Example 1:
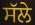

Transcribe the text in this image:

ਸੱਲੇ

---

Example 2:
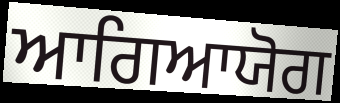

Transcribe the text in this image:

ਆਗਿਆਯੋਗ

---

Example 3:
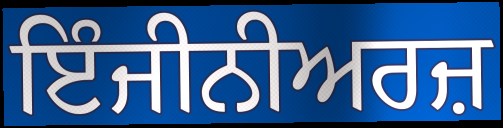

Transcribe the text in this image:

ਇੰਜੀਨੀਅਰਜ਼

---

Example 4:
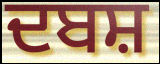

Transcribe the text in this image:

ਦਬਸ਼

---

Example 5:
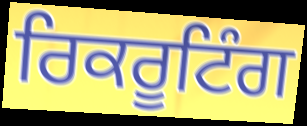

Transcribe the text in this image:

ਰਿਕਰੂਟਿੰਗ